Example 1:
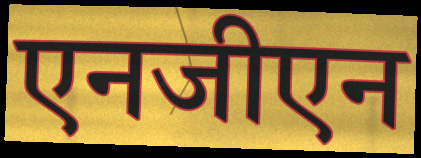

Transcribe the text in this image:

एनजीएन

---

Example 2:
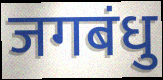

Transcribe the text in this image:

जगबंधु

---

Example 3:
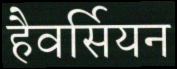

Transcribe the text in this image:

हैवर्सियन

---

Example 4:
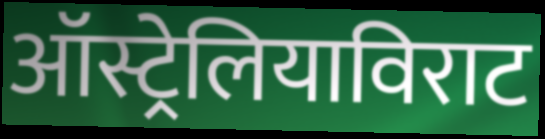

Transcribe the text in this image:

ऑस्ट्रेलियाविराट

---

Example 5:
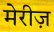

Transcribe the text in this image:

मेरीज़